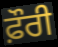
ਫ਼ੌਰੀ